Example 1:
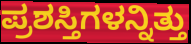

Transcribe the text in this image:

ಪ್ರಶಸ್ತಿಗಳನ್ನಿತ್ತು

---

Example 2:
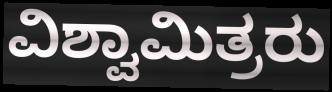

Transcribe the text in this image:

ವಿಶ್ವಾಮಿತ್ರರು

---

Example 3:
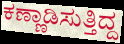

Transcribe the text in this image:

ಕಣ್ಣಾಡಿಸುತ್ತಿದ್ದ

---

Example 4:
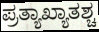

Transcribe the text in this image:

ಪ್ರತ್ಯಾಖ್ಯಾತಶ್ಚ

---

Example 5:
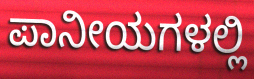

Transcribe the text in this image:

ಪಾನೀಯಗಳಲ್ಲಿ